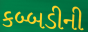
કબ્બડીની